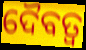
ଦୈବତ୍ଵ